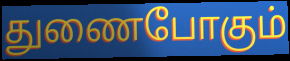
துணைபோகும்